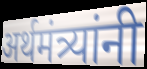
अर्थमंत्र्यांनी